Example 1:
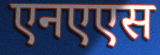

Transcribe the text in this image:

एनएएस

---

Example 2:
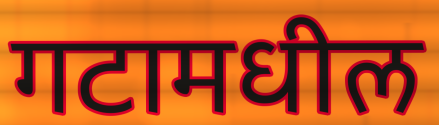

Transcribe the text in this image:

गटामधील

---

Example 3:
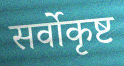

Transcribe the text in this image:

सर्वोकृष्ट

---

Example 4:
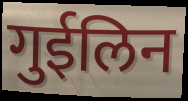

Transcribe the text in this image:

गुईलिन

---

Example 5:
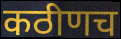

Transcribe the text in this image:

कठीणच